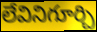
లేవినిగూర్చి